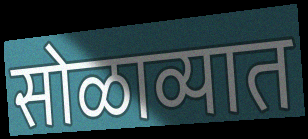
सोळाव्यात